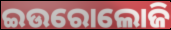
ଇଉରୋଲୋଜି